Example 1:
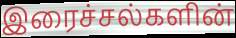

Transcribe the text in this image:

இரைச்சல்களின்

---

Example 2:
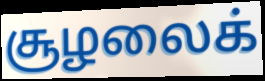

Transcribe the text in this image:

சூழலைக்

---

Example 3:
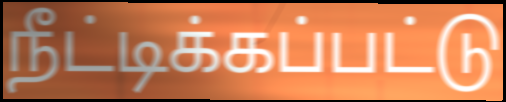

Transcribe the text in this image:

நீட்டிக்கப்பட்டு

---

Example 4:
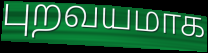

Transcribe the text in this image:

புறவயமாக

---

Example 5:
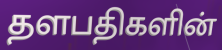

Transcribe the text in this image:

தளபதிகளின்